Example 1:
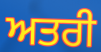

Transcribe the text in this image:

ਅਤਰੀ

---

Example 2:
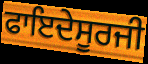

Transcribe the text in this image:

ਫਾਇਦੇਸੂਰਜੀ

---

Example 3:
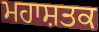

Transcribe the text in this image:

ਮਹਾਸ਼ਤਕ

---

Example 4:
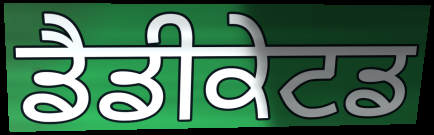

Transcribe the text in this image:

ਡੈਡੀਕੇਟਡ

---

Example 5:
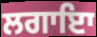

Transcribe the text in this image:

ਲਗਾਇਾ